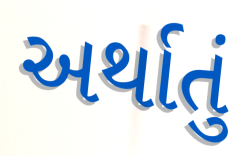
અર્થાતું